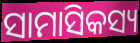
ସାମାସିକସ୍ୟ